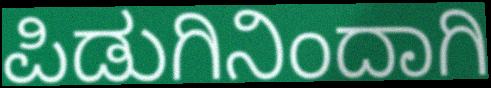
ಪಿಡುಗಿನಿಂದಾಗಿ